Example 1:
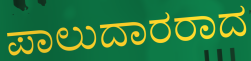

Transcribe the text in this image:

ಪಾಲುದಾರರಾದ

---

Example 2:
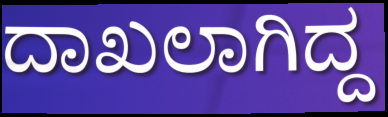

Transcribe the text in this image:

ದಾಖಲಾಗಿದ್ದ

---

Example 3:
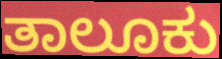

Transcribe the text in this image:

ತಾಲೂಕು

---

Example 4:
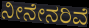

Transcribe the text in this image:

ನೀನೇನರಿವೆ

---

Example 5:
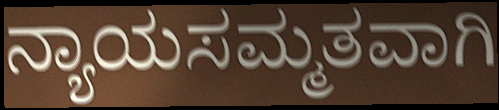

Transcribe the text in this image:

ನ್ಯಾಯಸಮ್ಮತವಾಗಿ